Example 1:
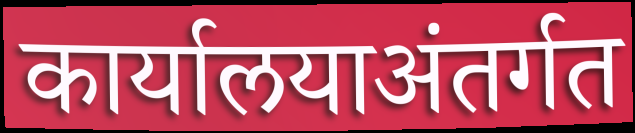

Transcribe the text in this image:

कार्यालयाअंतर्गत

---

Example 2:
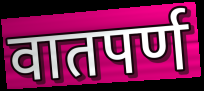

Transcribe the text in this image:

वातपर्ण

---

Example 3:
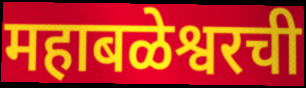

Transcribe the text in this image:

महाबळेश्वरची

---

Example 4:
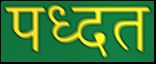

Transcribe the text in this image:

पध्दत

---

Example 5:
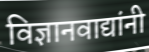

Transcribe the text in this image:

विज्ञानवाद्यांनी